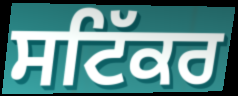
ਸਟਿੱਕਰ